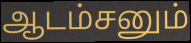
ஆடம்சனும்